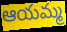
ఆయమ్మ